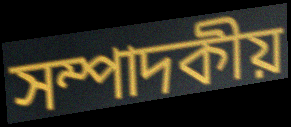
সম্পাদকীয়